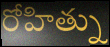
రోహిత్ను